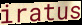
iratus